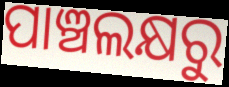
ପାଞ୍ଚଲକ୍ଷରୁ